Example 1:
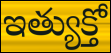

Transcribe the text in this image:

ఇత్యుక్తో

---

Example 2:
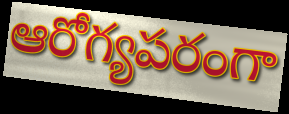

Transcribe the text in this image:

ఆరోగ్యపరంగా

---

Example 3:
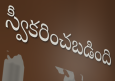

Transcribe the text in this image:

స్వీకరించబడింది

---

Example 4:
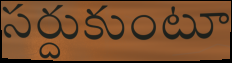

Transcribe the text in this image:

సర్దుకుంటూ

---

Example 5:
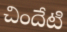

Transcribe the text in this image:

చిందేటి